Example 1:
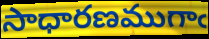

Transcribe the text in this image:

సాధారణముగాఁ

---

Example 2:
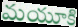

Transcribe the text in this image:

మయూకి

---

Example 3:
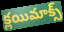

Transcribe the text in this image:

క్లయిమాక్స్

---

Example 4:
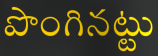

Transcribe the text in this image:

పొంగినట్టు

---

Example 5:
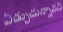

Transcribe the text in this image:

ఏడ్చుచున్నావని